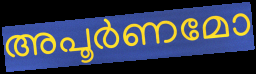
അപൂർണമോ